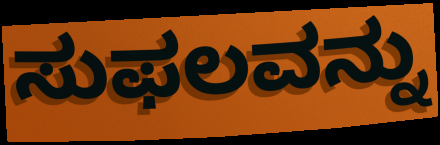
ಸುಫಲವನ್ನು